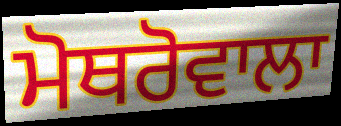
ਮੋਥਰੋਵਾਲਾ